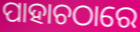
ପାହାଚଠାରେ